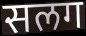
सलग